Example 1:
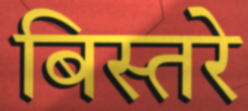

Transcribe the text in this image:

बिस्तरे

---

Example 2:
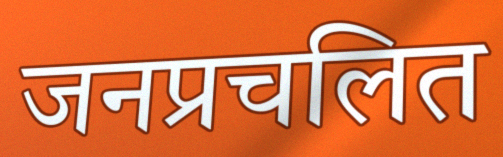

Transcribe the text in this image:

जनप्रचलित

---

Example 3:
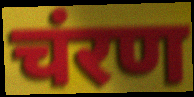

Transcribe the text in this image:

चंरण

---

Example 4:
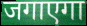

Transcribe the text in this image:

जगाएगा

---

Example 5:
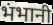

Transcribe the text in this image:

भंभानी